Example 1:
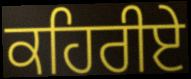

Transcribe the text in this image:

ਕਹਿਰੀਏ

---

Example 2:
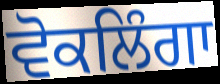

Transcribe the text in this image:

ਵੋਕਲਿੰਗਾ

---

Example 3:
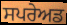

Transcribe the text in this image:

ਸਪਰੇਅਡ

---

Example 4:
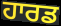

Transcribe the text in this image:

ਹਾਰਡ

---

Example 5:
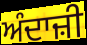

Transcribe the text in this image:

ਅੰਦਾਜ਼ੀ